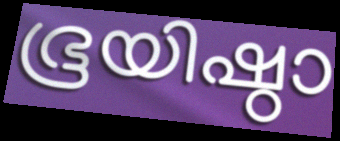
ഭൂയിഷ്ഠാ